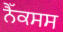
ਨੈੱਕਸਸ